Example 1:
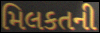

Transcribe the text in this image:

મિલકતની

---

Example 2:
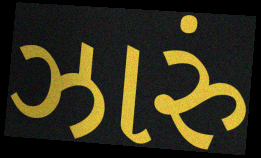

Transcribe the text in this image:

ઝારું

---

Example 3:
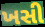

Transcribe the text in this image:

ખસી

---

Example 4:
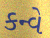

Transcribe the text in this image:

કન્વે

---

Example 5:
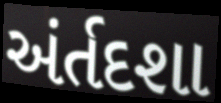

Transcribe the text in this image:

અંર્તદશા